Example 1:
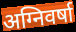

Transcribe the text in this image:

अग्निवर्षा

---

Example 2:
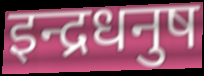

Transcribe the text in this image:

इन्द्रधनुष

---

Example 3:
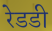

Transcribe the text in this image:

रेडडी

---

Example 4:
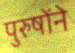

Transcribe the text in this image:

पुरुषोंने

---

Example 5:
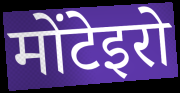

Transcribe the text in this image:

मोंटेइरो